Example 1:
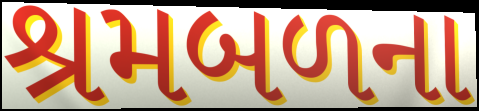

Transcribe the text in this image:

શ્રમબળના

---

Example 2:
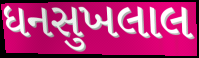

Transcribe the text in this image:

ધનસુખલાલ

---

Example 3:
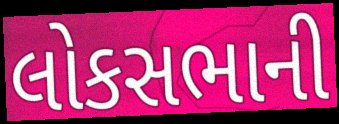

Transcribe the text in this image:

લોકસભાની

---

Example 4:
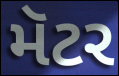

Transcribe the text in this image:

મૅટર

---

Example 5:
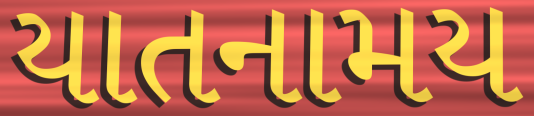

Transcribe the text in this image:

યાતનામય